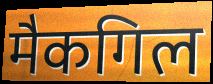
मैकगिल